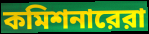
কমিশনারেরা